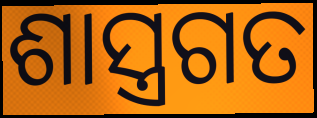
ଶାସ୍ତ୍ରଗତ